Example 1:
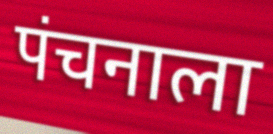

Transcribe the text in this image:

पंचनाला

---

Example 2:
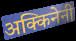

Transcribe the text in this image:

अक्किनेनी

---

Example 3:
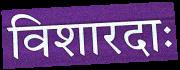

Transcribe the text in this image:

विशारदाः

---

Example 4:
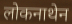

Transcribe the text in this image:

लोकनाथेन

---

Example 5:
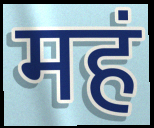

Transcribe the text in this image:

महं